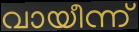
വായീന്ന്